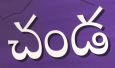
చండ